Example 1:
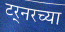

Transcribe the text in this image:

टर्नरच्या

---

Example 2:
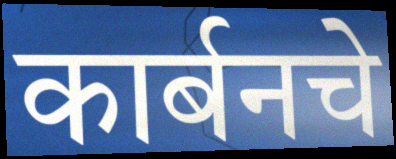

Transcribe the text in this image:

कार्बनचे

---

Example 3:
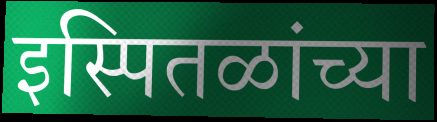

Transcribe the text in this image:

इस्पितळांच्या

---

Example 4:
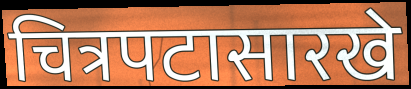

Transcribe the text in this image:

चित्रपटासारखे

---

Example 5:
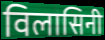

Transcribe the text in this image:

विलासिनी